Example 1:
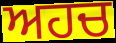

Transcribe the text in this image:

ਅਹਚ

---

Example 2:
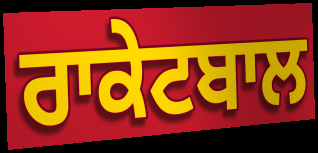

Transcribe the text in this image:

ਰਾਕੇਟਬਾਲ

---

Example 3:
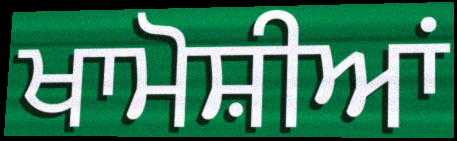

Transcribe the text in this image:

ਖਾਮੋਸ਼ੀਆਂ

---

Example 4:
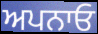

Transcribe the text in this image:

ਅਪਨਾਓ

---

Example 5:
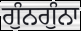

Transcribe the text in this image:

ਗੁੰਨਗੁੰਨਾ